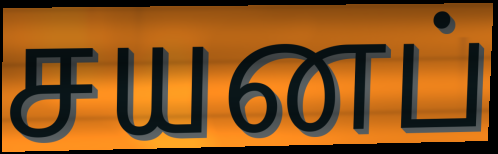
சயனப்